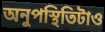
অনুপস্থিতিটাও